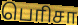
பெரிசா